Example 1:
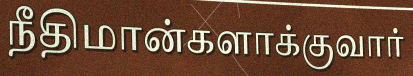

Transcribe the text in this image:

நீதிமான்களாக்குவார்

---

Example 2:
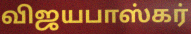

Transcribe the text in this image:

விஜயபாஸ்கர்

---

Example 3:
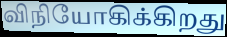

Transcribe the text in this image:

விநியோகிக்கிறது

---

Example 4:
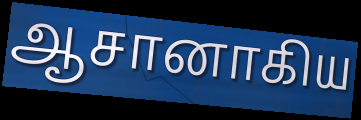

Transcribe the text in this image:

ஆசானாகிய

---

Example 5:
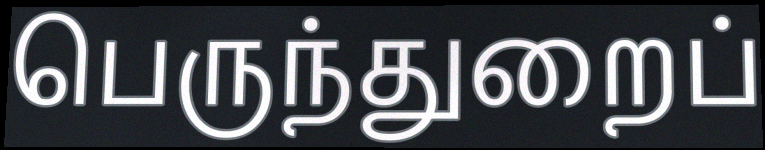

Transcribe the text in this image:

பெருந்துறைப்